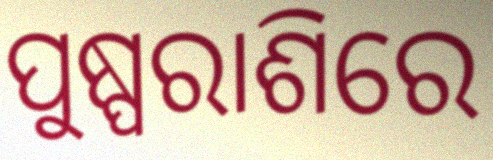
ପୁଷ୍ପରାଶିରେ